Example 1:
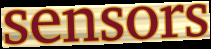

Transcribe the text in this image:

sensors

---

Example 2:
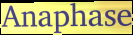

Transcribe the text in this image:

Anaphase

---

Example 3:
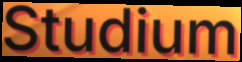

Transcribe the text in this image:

Studium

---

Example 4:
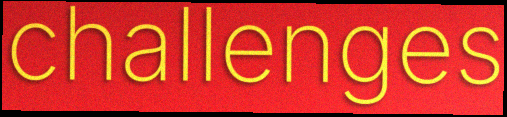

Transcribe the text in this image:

challenges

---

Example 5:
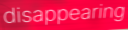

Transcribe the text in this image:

disappearing